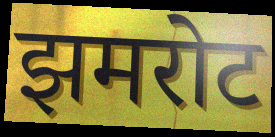
झमरोट